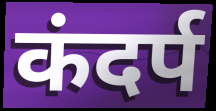
कंदर्प